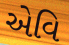
એવિ